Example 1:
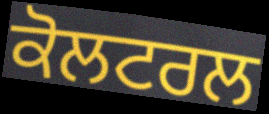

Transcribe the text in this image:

ਕੋਲਟਰਲ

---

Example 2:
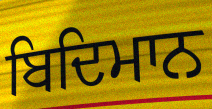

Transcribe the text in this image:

ਬਿਦਿਮਾਨ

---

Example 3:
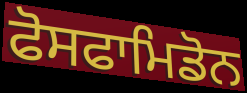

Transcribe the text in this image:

ਫੋਸਫਾਮਿਡੋਨ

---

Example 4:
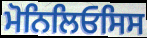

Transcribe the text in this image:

ਮੋਨਿਲਿਓਸਿਸ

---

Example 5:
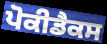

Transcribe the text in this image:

ਪੋਕੀਡੈਕਸ